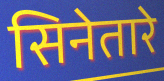
सिनेतारे